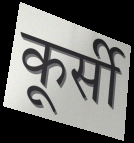
कूर्सी